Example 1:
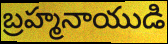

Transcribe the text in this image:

బ్రహ్మనాయుడి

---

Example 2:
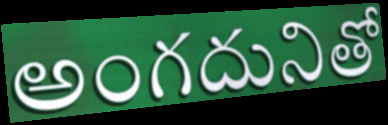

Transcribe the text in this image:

అంగదునితో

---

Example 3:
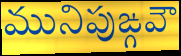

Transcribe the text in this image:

మునిపుఙ్గవౌ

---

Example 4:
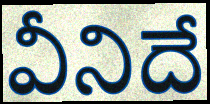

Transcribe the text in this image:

వీనిదే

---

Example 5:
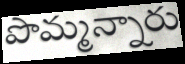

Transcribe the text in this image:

పొమ్మన్నారు